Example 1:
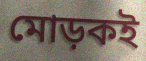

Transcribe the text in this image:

মোড়কই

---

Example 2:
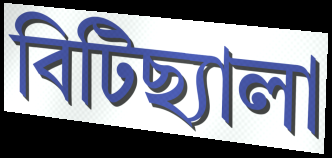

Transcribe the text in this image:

বিটিছ্যালা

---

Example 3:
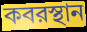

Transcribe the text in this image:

কবরস্থান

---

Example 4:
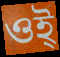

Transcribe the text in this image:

ওই্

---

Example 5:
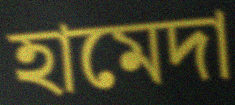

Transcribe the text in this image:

হামেদা